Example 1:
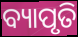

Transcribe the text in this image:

ବ୍ୟାପୃତି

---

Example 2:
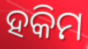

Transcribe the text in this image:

ହକିମ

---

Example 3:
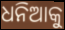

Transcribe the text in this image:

ଧନିଆକୁ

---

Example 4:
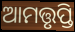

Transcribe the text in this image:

ଆମତ୍ତୃପ୍ତି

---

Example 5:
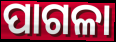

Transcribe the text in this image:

ପାଗଳା